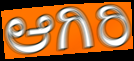
ಆಗಿರಿ